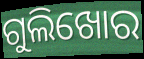
ଗୁଲିଖୋର